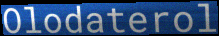
Olodaterol